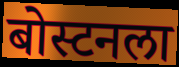
बोस्टनला